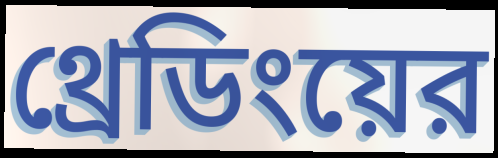
থ্রেডিংয়ের